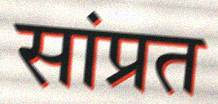
सांप्रत